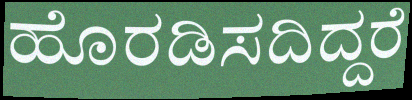
ಹೊರಡಿಸದಿದ್ದರೆ